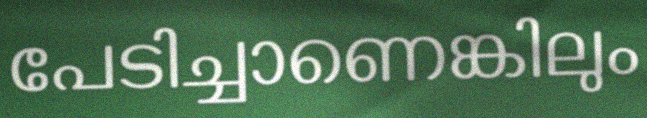
പേടിച്ചാണെങ്കിലും